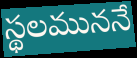
స్థలముననే